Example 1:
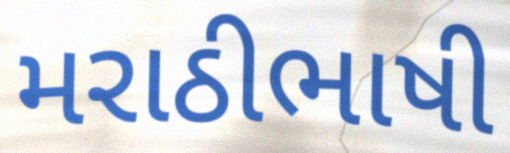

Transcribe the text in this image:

મરાઠીભાષી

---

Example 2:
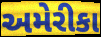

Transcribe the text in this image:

અમેરીકા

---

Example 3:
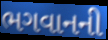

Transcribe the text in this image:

ભગવાનની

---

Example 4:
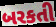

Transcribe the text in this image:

બરકતી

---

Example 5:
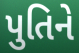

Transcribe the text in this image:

પુતિને